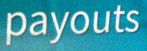
payouts